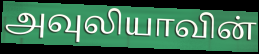
அவுலியாவின்